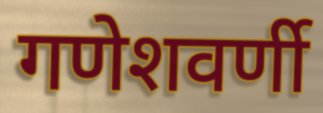
गणेशवर्णी